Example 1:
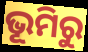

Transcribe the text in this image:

ଭୂମିରୁ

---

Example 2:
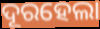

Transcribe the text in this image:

ଦୂରହେଲା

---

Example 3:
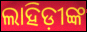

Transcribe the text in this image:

ଲାହିଡ଼ୀଙ୍କ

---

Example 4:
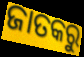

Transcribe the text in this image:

ଜାତକରୁ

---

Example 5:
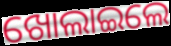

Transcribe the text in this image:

ଖୋଲାଇଲେ